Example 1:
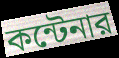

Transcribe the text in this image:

কন্টেনার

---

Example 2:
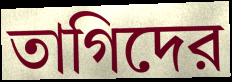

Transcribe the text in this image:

তাগিদের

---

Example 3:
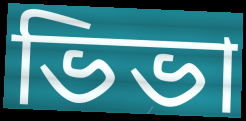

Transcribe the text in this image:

ভিভা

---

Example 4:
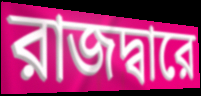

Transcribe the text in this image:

রাজদ্বারে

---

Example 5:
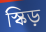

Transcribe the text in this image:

স্কিড়